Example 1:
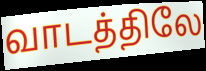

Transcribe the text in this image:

வாடத்திலே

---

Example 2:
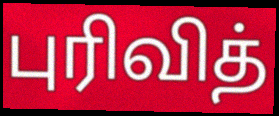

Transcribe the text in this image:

புரிவித்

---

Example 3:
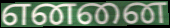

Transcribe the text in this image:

எனனை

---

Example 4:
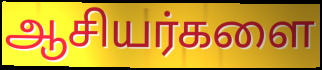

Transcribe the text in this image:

ஆசியர்களை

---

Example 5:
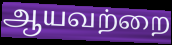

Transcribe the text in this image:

ஆயவற்றை